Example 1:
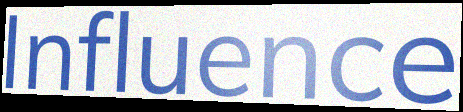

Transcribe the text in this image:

Influence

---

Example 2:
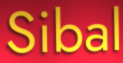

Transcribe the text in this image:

Sibal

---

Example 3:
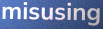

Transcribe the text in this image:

misusing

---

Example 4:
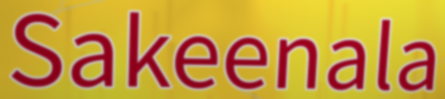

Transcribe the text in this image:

Sakeenala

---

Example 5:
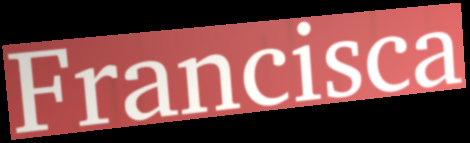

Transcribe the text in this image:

Francisca